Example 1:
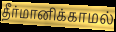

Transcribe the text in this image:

தீர்மானிக்காமல்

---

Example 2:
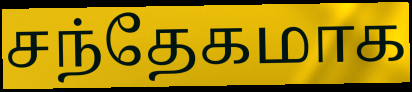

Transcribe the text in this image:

சந்தேகமாக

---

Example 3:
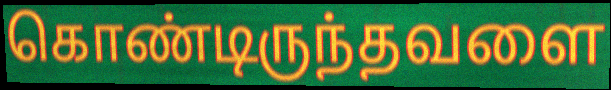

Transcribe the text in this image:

கொண்டிருந்தவளை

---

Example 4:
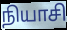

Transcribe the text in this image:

நியாசி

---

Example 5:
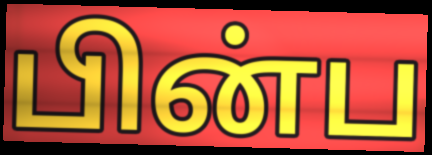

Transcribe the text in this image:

பின்ப